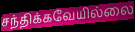
சந்திக்கவேயில்லை